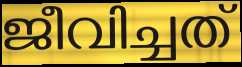
ജീവിച്ചത്